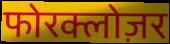
फोरक्लोज़र